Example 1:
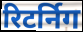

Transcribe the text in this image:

रिटर्निग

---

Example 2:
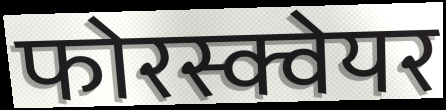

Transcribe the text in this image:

फोरस्क्वेयर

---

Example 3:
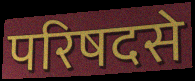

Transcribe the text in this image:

परिषदसे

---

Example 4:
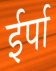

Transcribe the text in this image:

ईर्पा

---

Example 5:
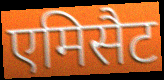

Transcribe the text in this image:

एमिसैट